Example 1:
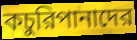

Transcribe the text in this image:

কচুরিপানাদের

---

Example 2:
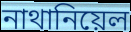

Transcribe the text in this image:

নাথানিয়েল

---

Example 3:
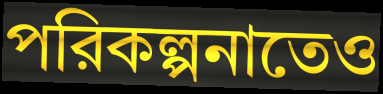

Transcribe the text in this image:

পরিকল্পনাতেও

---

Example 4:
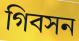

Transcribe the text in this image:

গিবসন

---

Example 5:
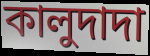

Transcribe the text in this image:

কালুদাদা